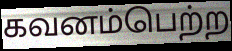
கவனம்பெற்ற